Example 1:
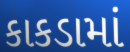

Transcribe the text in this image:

કાકડામાં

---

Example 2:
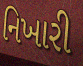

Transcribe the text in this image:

નિખારી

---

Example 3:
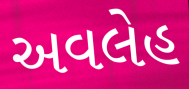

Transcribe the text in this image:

અવલેહ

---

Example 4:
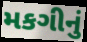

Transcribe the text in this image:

મકગીનું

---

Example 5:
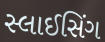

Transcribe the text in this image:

સ્લાઈસિંગ